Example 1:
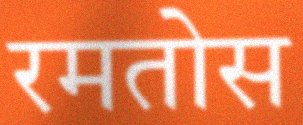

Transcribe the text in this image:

रमतोस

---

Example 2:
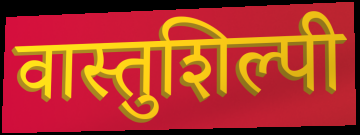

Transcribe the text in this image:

वास्तुशिल्पी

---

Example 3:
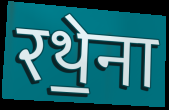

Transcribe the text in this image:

रथे॒ना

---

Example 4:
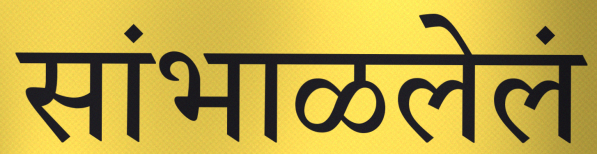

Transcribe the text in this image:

सांभाळलेलं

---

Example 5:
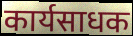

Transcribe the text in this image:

कार्यसाधक